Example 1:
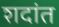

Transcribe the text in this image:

शदांत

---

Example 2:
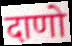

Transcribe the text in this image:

दाणो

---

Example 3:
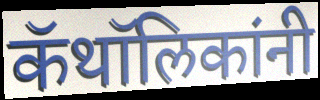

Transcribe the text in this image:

कॅथॉलिकांनी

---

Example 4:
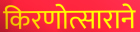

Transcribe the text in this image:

किरणोत्साराने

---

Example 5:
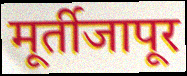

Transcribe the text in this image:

मूर्तीजापूर